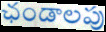
ఛండాలపు